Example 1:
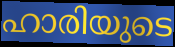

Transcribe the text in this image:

ഹാരിയുടെ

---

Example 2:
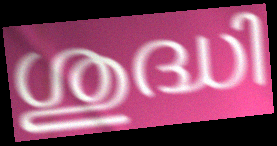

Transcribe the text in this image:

ശുദ്ധി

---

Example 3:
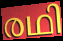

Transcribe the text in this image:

രഥി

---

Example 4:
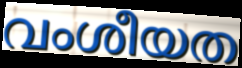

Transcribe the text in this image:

വംശീയത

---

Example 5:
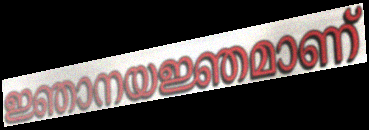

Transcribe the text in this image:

ജ്ഞാനയജ്ഞമാണ്